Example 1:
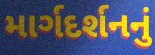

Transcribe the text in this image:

માર્ગદર્શનનું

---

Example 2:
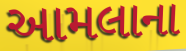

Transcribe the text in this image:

આમલાના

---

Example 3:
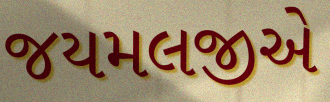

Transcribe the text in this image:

જયમલજીએ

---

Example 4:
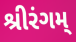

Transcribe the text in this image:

શ્રીરંગમ્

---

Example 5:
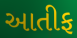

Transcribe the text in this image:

આતીફ